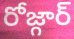
రోజ్గార్